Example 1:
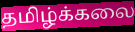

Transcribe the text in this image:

தமிழ்க்கலை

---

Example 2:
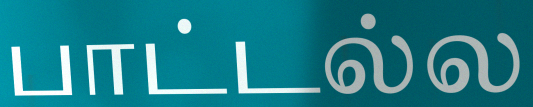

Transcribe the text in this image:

பாட்டல்ல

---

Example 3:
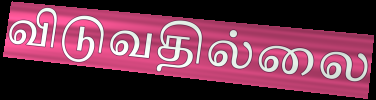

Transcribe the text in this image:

விடுவதில்லை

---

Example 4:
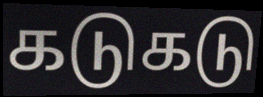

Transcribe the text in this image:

கடுகடு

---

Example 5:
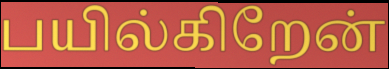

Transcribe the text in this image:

பயில்கிறேன்